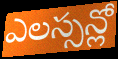
ఎలస్సన్లో